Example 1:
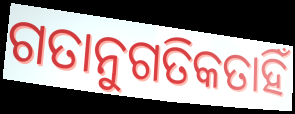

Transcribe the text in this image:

ଗତାନୁଗତିକତାହିଁ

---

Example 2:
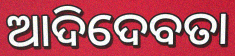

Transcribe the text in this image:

ଆଦିଦେବତା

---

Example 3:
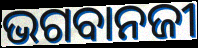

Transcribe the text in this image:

ଭଗବାନଜୀ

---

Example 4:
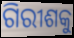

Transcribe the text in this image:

ଗିରୀଶକୁ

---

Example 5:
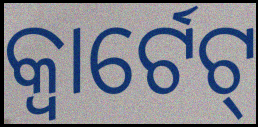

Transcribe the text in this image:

କ୍ୱାର୍ଟେଟ୍